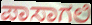
ಪಾಸಾಗಲಿ